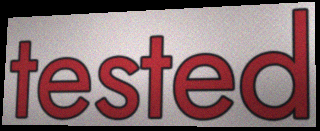
tested